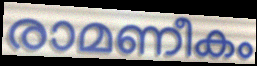
രാമണീകം